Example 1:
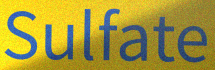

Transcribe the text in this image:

Sulfate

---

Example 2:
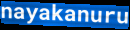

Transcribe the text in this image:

nayakanuru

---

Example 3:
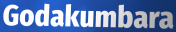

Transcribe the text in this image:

Godakumbara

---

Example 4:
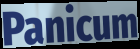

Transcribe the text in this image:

Panicum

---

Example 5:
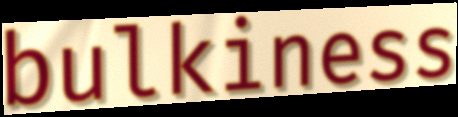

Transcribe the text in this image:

bulkiness